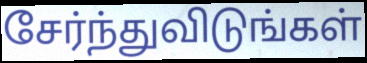
சேர்ந்துவிடுங்கள்